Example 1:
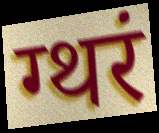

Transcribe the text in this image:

ग्थरं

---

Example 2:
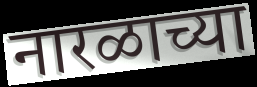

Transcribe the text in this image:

नारळाच्या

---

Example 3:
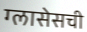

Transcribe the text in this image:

ग्लासेसची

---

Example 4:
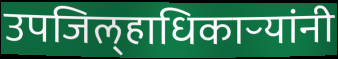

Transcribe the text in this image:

उपजिल्हाधिकाऱ्यांनी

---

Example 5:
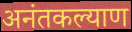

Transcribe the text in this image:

अनंतकल्याण